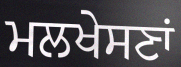
ਮਲਖੇਸਣਾਂ